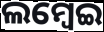
ଲମ୍ଵେଇ